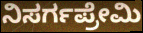
ನಿಸರ್ಗಪ್ರೇಮಿ